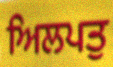
ਅਿਲਪਤੁ